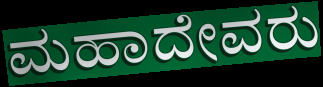
ಮಹಾದೇವರು